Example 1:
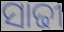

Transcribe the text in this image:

ସାଢୀ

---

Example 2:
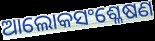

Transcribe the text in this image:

ଆଲୋକସଂଶ୍ଳେଷଣ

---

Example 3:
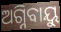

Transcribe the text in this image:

ଅଗ୍ନିବାୟୁ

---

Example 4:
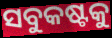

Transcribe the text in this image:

ସବୁକଷ୍ଟକୁ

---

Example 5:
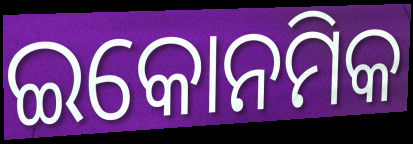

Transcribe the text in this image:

ଇକୋନମିକ